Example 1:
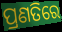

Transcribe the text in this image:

ପ୍ରଣତିରେ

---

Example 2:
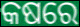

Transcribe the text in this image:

କଷରେ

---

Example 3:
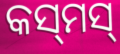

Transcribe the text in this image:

କସ୍‌ମସ୍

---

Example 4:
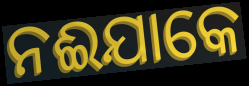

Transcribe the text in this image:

ନଈଯାକେ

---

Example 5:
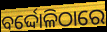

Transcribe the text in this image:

ବର୍ଦ୍ଦୋଳିଠାରେ